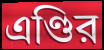
এণ্ডির